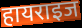
हायराइज